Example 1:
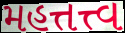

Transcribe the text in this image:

મહત્તત્ત્વ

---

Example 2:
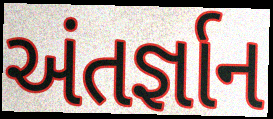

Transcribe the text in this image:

અંતર્જ્ઞાન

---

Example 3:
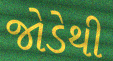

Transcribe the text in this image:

જોડેથી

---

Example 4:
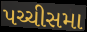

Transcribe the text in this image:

પચ્ચીસમા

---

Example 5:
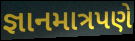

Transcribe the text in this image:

જ્ઞાનમાત્રપણે